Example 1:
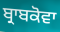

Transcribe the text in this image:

ਬ੍ਰਾਬਕੋਵਾ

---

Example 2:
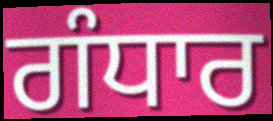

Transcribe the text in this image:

ਗੰਧਾਰ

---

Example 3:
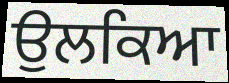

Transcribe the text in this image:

ਉਲਕਿਆ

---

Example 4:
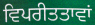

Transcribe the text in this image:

ਵਿਪਰੀਤਤਾਵਾਂ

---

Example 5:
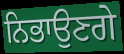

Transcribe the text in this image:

ਨਿਭਾਉਣਗੇ